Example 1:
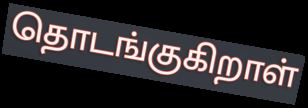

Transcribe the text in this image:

தொடங்குகிறாள்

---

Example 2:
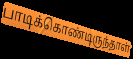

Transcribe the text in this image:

பாடிக்கொண்டிருந்தாள்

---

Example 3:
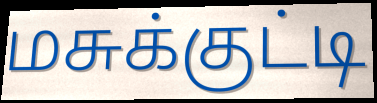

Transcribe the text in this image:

மசுக்குட்டி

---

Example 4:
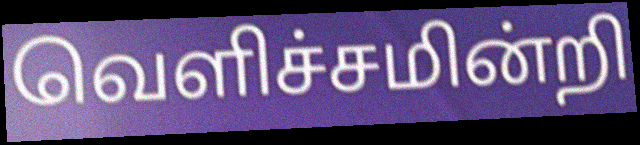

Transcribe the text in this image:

வெளிச்சமின்றி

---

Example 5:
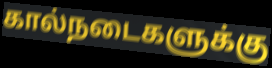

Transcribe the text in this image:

கால்நடைகளுக்கு